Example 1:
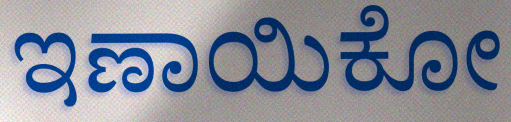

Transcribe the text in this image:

ಇಣಾಯಿಕೋ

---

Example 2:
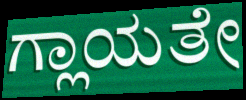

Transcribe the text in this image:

ಗ್ಲಾಯತೇ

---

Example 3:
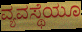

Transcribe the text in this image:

ವ್ಯವಸ್ಥೆಯೂ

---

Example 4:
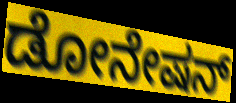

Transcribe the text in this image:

ಡೋನೇಷನ್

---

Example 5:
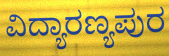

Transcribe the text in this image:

ವಿದ್ಯಾರಣ್ಯಪುರ